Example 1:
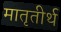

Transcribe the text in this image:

मातृतीर्थ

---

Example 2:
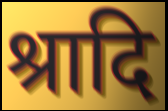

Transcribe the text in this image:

श्रादि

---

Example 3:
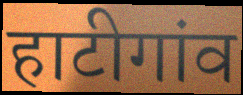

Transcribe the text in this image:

हाटीगांव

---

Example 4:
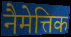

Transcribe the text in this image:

नैमेत्तिक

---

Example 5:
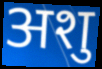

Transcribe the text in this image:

अशु